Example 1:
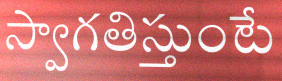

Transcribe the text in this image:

స్వాగతిస్తుంటే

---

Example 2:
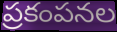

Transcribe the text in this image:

ప్రకంపనల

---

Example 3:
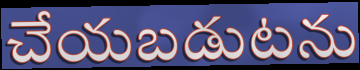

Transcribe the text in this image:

చేయబడుటను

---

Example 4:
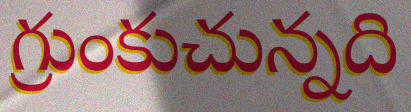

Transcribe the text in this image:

గ్రుంకుచున్నది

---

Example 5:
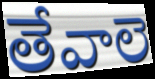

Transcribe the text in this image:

తేవాలె